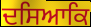
ਦਸਿਆਕਿ